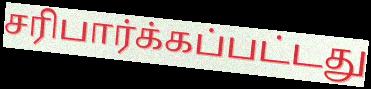
சரிபார்க்கப்பட்டது